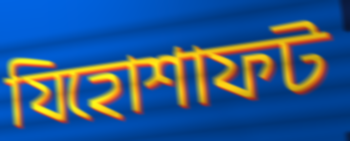
যিহোশাফট